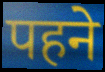
पहने